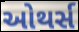
ઓથર્સ